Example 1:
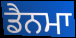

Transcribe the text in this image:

ਡੈਨਮਾ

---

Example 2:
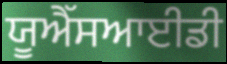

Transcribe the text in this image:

ਯੂਐੱਸਆਈਡੀ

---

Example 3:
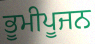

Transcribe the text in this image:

ਭੂਮੀਪੂਜਨ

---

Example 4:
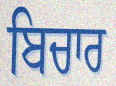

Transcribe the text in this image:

ਬਿਚਾਰ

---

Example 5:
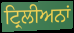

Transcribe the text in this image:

ਟ੍ਰਿਲੀਅਨਾਂ